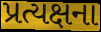
પ્રત્યક્ષના